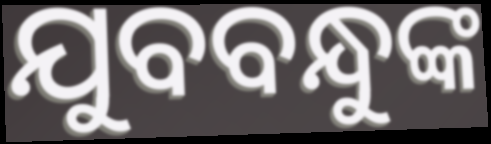
ଯୁବବନ୍ଧୁଙ୍କ